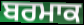
ਬਰਮਾਕ